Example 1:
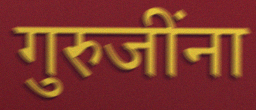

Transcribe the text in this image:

गुरुजींना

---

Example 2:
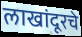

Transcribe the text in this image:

लाखांदूरचे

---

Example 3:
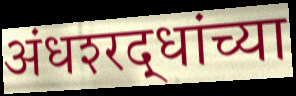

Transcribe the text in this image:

अंधश्रद्धांच्या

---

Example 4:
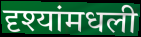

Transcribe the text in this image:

दृश्यांमधली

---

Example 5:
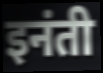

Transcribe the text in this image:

इनंती